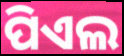
ପିଏଲ